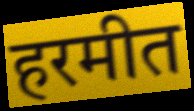
हरमीत